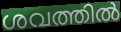
ശവത്തിൽ